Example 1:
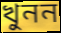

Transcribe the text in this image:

খুনন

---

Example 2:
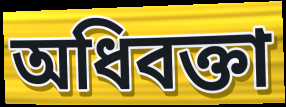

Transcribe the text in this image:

অধিবক্তা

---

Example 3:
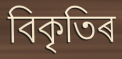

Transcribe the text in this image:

বিকৃতিৰ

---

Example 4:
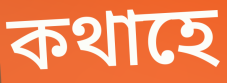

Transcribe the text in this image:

কথাহে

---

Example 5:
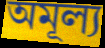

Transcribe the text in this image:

অমূল্য